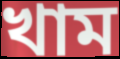
খাম